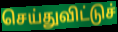
செய்துவிட்டுச்